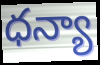
ధన్యా